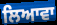
ਲਿਆਵਾ